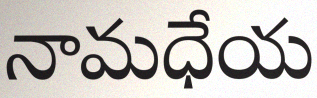
నామధేయ